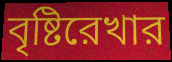
বৃষ্টিরেখার